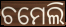
ଚମେଲି